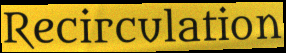
Recirculation